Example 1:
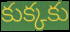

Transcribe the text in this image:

కుక్కకు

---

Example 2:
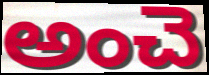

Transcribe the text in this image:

అంచె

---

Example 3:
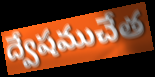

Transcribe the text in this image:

ద్వేషముచేత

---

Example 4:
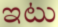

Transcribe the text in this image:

ఇటు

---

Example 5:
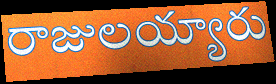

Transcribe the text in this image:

రాజులయ్యారు